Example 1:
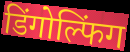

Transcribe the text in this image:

डिंगोल्फिंग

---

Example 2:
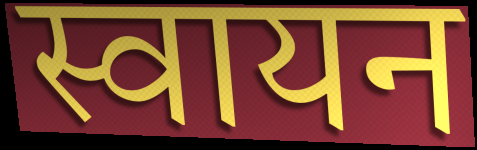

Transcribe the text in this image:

स्वायन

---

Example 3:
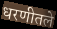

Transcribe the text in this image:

धरणीतले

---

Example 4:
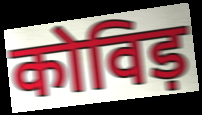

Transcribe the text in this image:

कोविड़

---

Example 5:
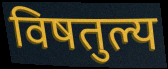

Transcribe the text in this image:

विषतुल्य